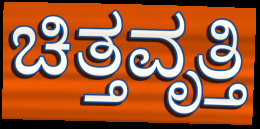
ಚಿತ್ತವೃತ್ತಿ